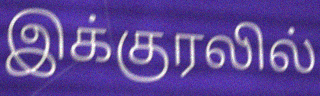
இக்குரலில்